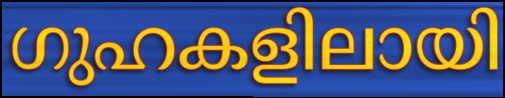
ഗുഹകളിലായി